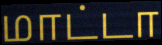
மாட்டா